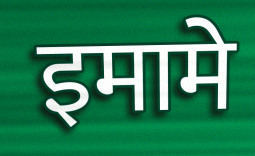
इमामे